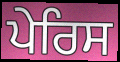
ਪੇਰਿਸ